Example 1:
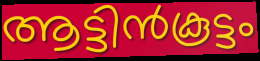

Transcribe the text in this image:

ആട്ടിൻകൂട്ടം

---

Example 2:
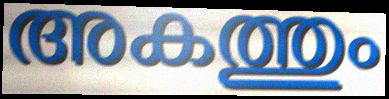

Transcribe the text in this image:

അകത്തും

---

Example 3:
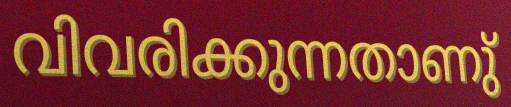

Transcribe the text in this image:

വിവരിക്കുന്നതാണു്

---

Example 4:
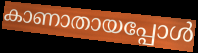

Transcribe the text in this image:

കാണാതായപ്പോൾ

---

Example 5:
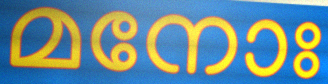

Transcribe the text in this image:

മനോഃ